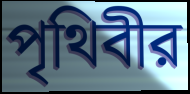
পৃথিবীর